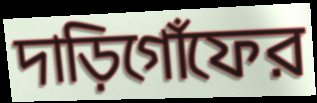
দাড়িগোঁফের